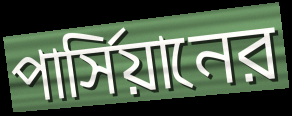
পার্সিয়ানের